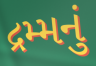
દ્રમ્મનું